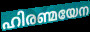
ഹിരണ്മയേന